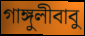
গাঙ্গুলীবাবু